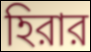
হিরার